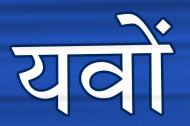
यवों